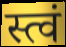
स्त्वं